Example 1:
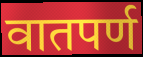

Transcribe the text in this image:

वातपर्ण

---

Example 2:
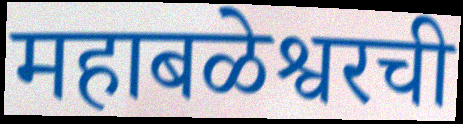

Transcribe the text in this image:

महाबळेश्वरची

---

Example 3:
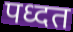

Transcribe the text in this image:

पध्दत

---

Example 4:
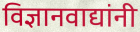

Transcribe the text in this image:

विज्ञानवाद्यांनी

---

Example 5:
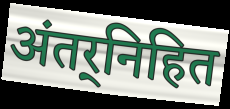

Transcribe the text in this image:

अंतर्निहित